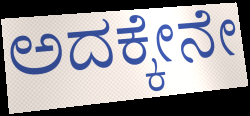
ಅದಕ್ಕೇನೇ